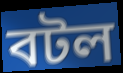
বটল